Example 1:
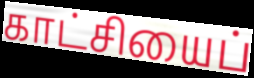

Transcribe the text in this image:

காட்சியைப்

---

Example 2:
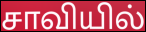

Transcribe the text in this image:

சாவியில்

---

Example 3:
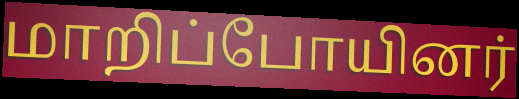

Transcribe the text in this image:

மாறிப்போயினர்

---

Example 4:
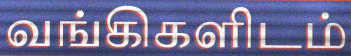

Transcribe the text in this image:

வங்கிகளிடம்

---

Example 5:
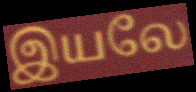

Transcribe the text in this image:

இயலே